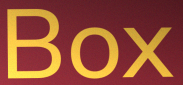
Box